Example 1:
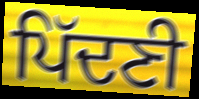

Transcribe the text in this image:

ਪਿੱਦਣੀ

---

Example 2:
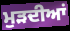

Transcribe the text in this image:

ਮੁੜਦੀਆਂ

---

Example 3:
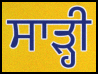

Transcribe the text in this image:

ਸਾੜ੍ਹੀ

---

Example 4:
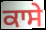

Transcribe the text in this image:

ਕਾਸੇ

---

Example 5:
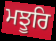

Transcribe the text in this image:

ਮਝੂਰਿ